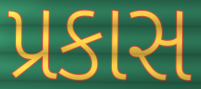
પ્રકાસ